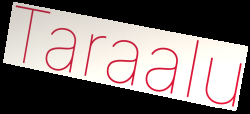
Taraalu